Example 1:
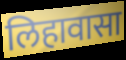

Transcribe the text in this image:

लिहावासा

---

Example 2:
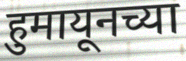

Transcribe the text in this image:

हुमायूनच्या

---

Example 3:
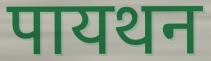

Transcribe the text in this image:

पायथन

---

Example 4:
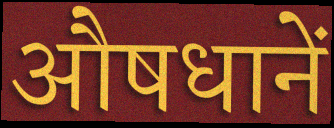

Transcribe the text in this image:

औषधानें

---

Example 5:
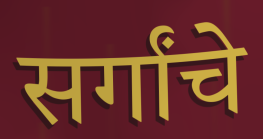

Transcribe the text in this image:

सर्गांचे